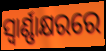
ସ୍ୱାର୍ଣ୍ଣାକ୍ଷରରେ